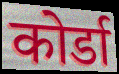
कोर्डा